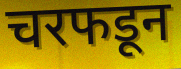
चरफडून